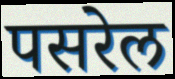
पसरेल